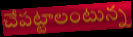
చేపట్టాలంటున్న